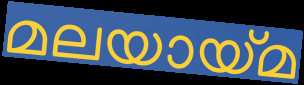
മലയായ്മ